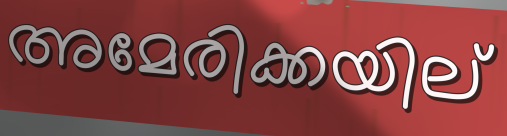
അമേരിക്കയില്